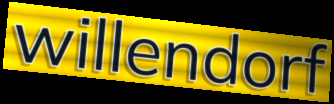
willendorf